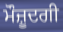
ਮੌਜ਼ੂਦਗੀ